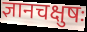
ज्ञानचक्षुषः